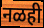
नळही